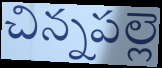
చిన్నపల్లె